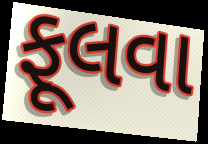
ફૂલવા